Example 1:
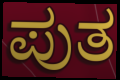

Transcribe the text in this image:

ಪುತ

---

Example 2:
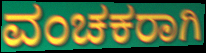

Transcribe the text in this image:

ವಂಚಕರಾಗಿ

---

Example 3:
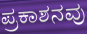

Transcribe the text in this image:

ಪ್ರಕಾಶನವು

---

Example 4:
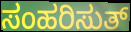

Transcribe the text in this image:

ಸಂಹರಿಸುತ್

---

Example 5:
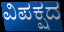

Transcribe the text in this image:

ವಿಪಕ್ಷದ